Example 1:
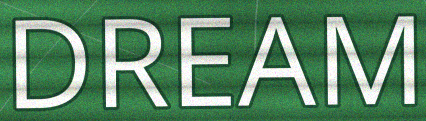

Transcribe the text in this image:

DREAM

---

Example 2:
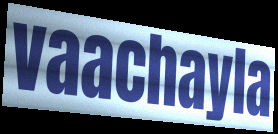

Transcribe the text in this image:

vaachayla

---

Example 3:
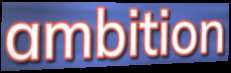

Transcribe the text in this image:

ambition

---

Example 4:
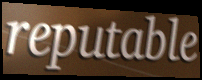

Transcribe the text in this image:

reputable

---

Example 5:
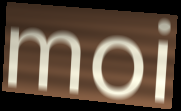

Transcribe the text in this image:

moi